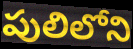
పులిలోని